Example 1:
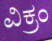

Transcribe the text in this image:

ವಿಕ್ರಂ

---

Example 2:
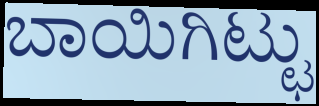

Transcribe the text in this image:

ಬಾಯಿಗಿಟ್ಟು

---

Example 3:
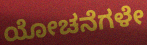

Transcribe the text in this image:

ಯೋಚನೆಗಳೇ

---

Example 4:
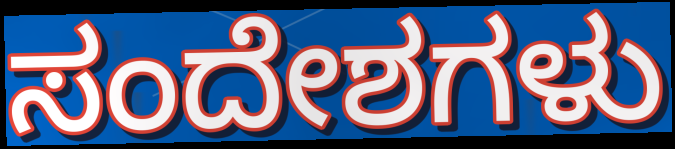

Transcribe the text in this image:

ಸಂದೇಶಗಳು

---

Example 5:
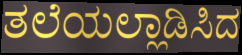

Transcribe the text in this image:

ತಲೆಯಲ್ಲಾಡಿಸಿದ